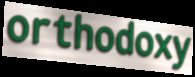
orthodoxy